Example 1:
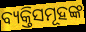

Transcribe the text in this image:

ବ୍ୟକ୍ତିସମୂହଙ୍କ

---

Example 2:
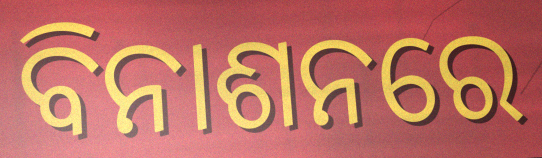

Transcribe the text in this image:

ବିନାଶନରେ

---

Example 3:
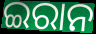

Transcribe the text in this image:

ଇରାନ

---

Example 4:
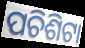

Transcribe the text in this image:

ପଚିଶିଟା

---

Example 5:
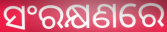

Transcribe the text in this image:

ସଂରକ୍ଷଣରେ